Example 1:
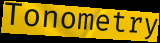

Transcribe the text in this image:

Tonometry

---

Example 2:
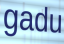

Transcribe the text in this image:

gadu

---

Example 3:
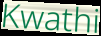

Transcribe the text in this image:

Kwathi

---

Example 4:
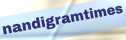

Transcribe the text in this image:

nandigramtimes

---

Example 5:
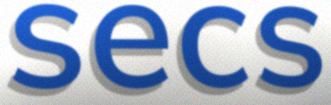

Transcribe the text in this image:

secs